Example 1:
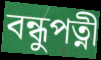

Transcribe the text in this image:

বন্ধুপত্নী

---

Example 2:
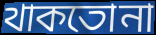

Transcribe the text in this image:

থাকতোনা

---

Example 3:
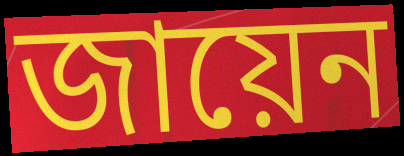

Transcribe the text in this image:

জায়েন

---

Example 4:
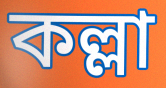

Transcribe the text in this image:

কল্লা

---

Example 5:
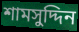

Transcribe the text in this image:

শামসুদ্দিন